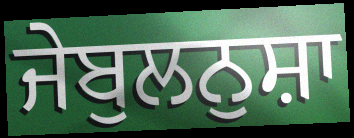
ਜੇਬੁਲਨੁਸ਼ਾ